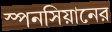
স্পনসিয়ানের